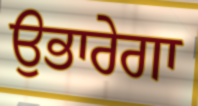
ਉਭਾਰੇਗਾ